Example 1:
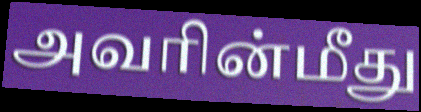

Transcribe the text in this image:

அவரின்மீது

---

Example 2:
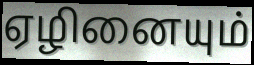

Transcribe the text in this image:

ஏழினையும்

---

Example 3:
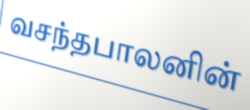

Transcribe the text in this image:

வசந்தபாலனின்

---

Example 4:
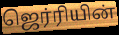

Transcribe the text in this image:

ஜெர்ரியின்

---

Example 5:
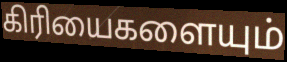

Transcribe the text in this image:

கிரியைகளையும்